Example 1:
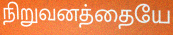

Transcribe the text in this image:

நிறுவனத்தையே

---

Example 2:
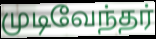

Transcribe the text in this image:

முடிவேந்தர்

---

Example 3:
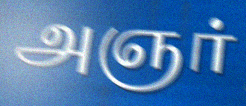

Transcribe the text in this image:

அஞர்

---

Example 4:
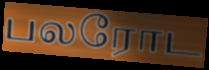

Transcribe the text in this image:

பலரோட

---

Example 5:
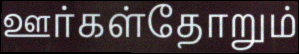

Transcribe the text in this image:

ஊர்கள்தோறும்